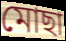
মোছা